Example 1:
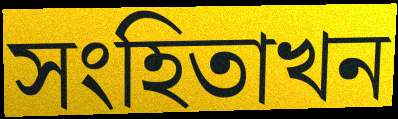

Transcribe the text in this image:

সংহিতাখন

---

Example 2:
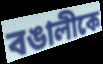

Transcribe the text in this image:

বঙালীকে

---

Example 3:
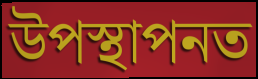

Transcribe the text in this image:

উপস্থাপনত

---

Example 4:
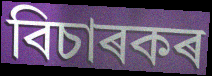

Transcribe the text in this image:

বিচাৰকৰ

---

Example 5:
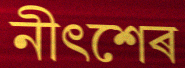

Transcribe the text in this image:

নীৎশেৰ